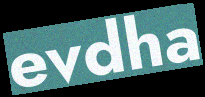
evdha